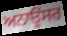
ਅਨਾਊਂਸਰ